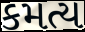
કમત્ય